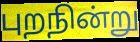
புறநின்று